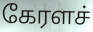
கேரளச்